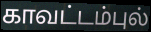
காவட்டம்புல்